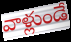
వాళ్లుండే